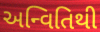
અન્વિતિથી